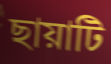
ছায়াটি